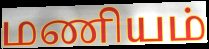
மணியம்